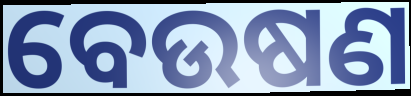
ବେଉଷଣ